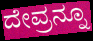
ದೇವ್ರನ್ನೂ